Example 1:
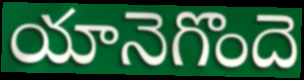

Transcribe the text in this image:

యానెగొందె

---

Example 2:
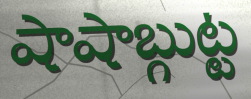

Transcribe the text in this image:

షాషాబ్గుట్ట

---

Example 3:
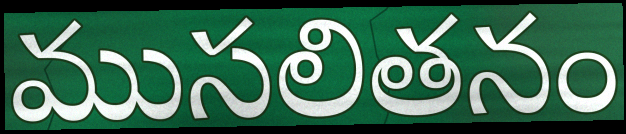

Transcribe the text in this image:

ముసలితనం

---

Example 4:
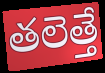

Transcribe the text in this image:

తలెత్తే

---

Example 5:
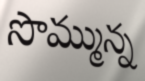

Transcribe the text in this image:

సొమ్మున్న